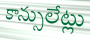
కాన్సులేట్లు